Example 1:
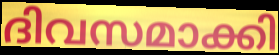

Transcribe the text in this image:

ദിവസമാക്കി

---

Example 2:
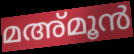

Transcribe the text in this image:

മഅ്മൂൻ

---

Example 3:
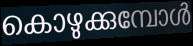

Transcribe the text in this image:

കൊഴുക്കുമ്പോൾ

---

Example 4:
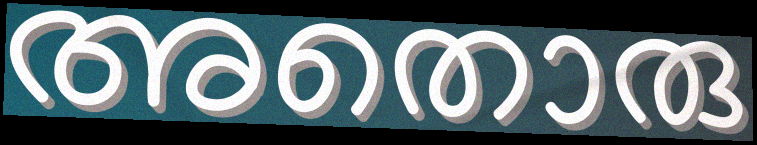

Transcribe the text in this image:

അതൊരു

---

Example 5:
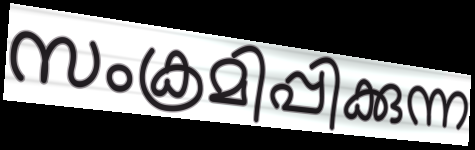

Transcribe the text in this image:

സംക്രമിപ്പിക്കുന്ന